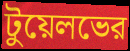
টুয়েলভের